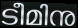
ടീമിനു